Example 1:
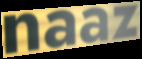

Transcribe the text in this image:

naaz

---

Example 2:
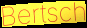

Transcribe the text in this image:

Bertsch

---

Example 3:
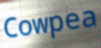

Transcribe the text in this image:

Cowpea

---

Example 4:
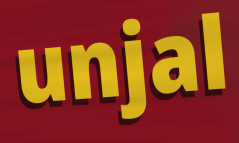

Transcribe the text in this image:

unjal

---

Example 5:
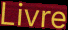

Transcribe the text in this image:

Livre